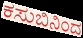
ಕಸುಬಿನಿಂದ